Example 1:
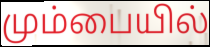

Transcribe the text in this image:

மும்பையில்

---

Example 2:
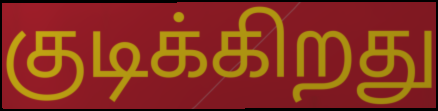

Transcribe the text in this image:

குடிக்கிறது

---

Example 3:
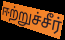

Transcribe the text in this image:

ஈற்றுச்சீர்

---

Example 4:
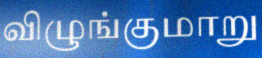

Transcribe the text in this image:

விழுங்குமாறு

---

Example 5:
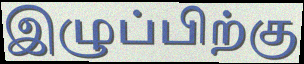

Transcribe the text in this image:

இழுப்பிற்கு